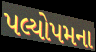
પલ્યોપમના